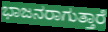
ಭಾಜನರಾಗುತ್ತಾರೆ